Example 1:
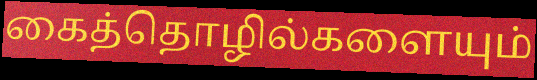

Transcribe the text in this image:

கைத்தொழில்களையும்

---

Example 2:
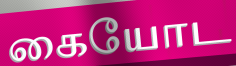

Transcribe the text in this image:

கையோட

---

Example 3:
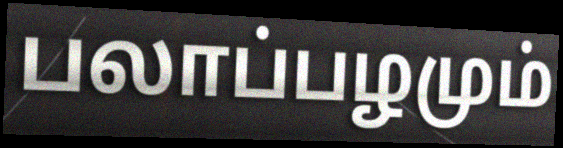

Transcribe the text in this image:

பலாப்பழமும்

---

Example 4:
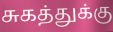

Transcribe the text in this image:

சுகத்துக்கு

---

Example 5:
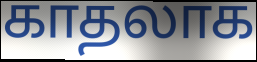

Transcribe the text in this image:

காதலாக